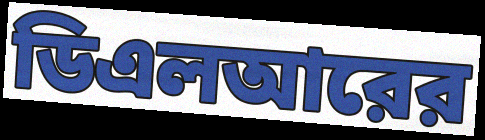
ডিএলআরের